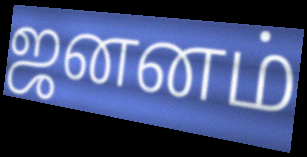
ஜனனம்